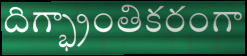
దిగ్భ్రాంతికరంగా